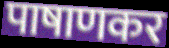
पाषाणकर